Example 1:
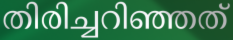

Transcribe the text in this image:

തിരിച്ചറിഞ്ഞത്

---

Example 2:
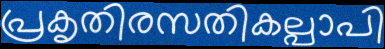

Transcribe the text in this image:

പ്രകൃതിരസതികല്പാപി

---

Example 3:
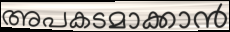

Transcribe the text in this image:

അപകടമാക്കാൻ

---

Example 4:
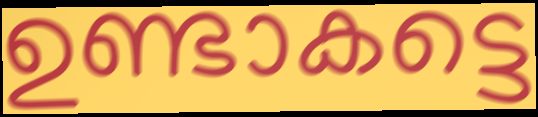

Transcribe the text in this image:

ഉണ്ടാകട്ടെ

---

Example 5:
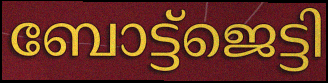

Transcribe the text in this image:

ബോട്ട്ജെട്ടി